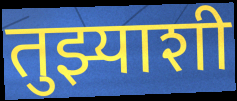
तुझ्याशी